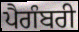
ਪੈਗੰਬਰੀ